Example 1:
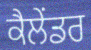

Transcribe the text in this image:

ਕੈਲੇਂਡਰ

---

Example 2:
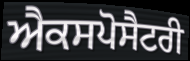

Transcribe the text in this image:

ਐਕਸਪੋਸੈਟਰੀ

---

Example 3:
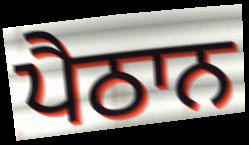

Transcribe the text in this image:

ਪੈਠਾਨ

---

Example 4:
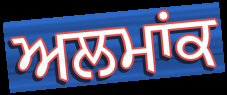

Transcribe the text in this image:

ਅਲਮਾਂਕ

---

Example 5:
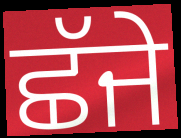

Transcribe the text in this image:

ਛੱਜੇ